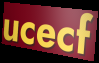
ucecf